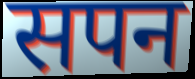
सपन